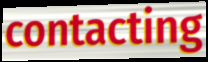
contacting